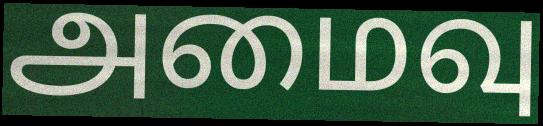
அமைவு